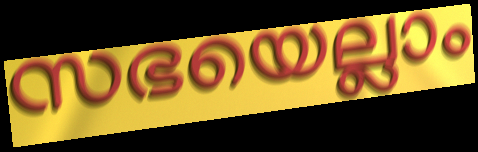
സഭയെല്ലാം